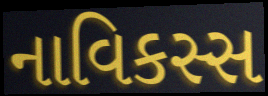
નાવિકસ્સ